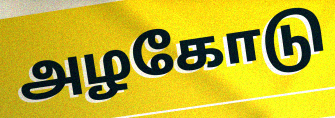
அழகோடு